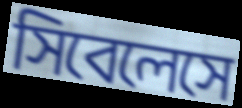
সিবেলেসে